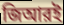
জিআরই